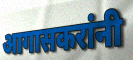
आगासकरांनी